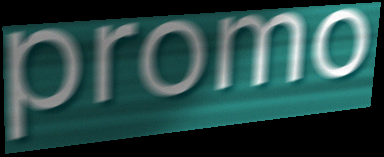
promo